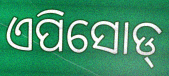
ଏପିସୋଡ୍